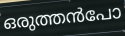
ഒരുത്തൻപോ